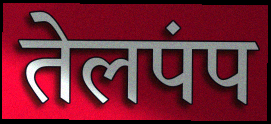
तेलपंप